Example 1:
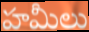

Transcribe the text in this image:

హమీలు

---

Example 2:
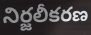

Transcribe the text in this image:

నిర్జలీకరణ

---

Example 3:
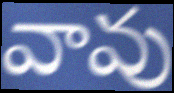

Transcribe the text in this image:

వావు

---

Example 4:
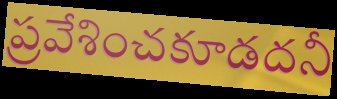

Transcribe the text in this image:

ప్రవేశించకూడదనీ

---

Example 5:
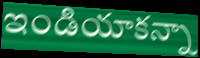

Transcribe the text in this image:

ఇండియాకన్నా